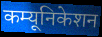
कम्यूनिकेशन